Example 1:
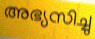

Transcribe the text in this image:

അഭ്യസിച്ചു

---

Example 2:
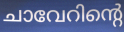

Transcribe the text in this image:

ചാവേറിന്റെ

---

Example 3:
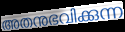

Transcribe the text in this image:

അതനുഭവിക്കുന്ന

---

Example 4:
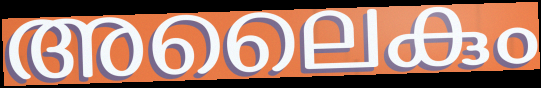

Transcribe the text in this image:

അലൈകും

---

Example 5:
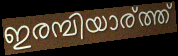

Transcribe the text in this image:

ഇരമ്പിയാര്ത്ത്